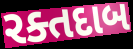
રક્તદાબ